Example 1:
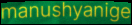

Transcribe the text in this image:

manushyanige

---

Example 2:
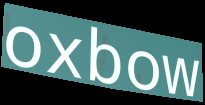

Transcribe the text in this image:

oxbow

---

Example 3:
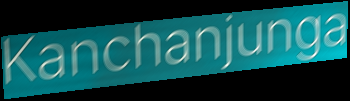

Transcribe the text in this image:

Kanchanjunga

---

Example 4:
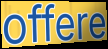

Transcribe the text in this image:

offere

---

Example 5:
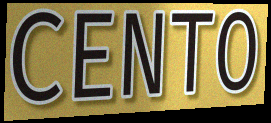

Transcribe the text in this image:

CENTO